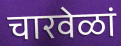
चारवेळां